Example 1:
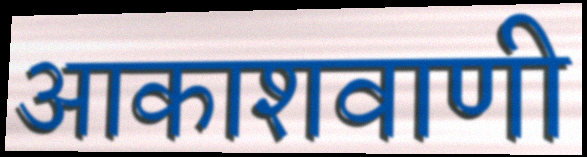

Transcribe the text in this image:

आकाशवाणी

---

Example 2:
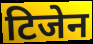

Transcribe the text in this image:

टिजेन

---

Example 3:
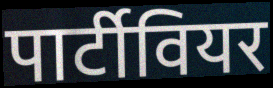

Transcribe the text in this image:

पार्टीवियर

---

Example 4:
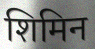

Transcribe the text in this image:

शिमिन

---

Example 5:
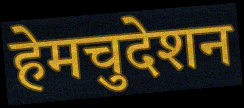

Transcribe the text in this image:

हेमचुदेशन